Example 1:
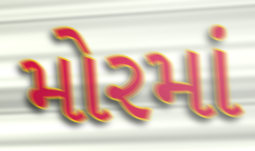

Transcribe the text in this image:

મોરમાં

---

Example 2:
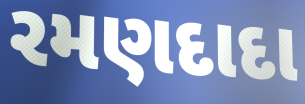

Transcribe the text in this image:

રમણદાદા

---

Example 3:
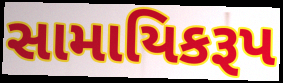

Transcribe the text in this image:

સામાયિકરૂપ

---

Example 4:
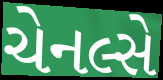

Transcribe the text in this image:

ચેનલ્સે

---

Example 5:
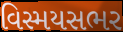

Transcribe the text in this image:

વિસ્મયસભર